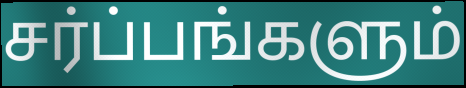
சர்ப்பங்களும்